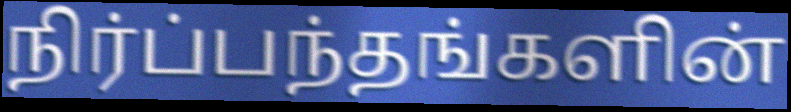
நிர்ப்பந்தங்களின்